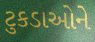
ટુકડાઓને